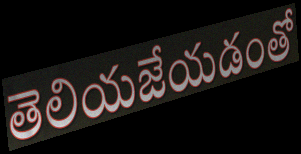
తెలియజేయడంతో